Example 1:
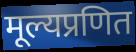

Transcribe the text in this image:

मूल्यप्रणित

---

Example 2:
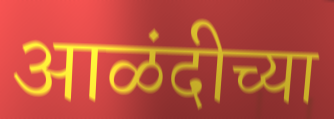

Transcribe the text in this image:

आळंदीच्या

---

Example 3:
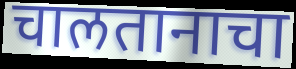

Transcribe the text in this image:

चालतानाचा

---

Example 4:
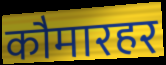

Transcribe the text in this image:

कौमारहर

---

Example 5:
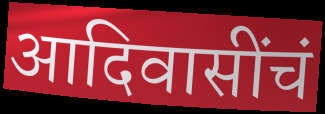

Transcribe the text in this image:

आदिवासींचं